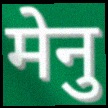
मेनु